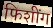
फिशींग